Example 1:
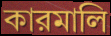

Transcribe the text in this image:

কারমালি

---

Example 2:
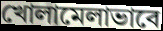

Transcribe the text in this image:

খোলামেলাভাবে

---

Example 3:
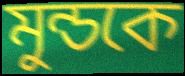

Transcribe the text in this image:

মুন্ডকে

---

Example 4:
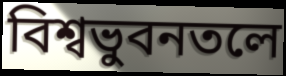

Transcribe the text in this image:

বিশ্বভুবনতলে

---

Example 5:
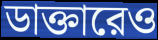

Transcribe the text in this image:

ডাক্তারেও